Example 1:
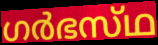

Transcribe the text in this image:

ഗർഭസ്‌ഥ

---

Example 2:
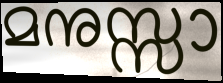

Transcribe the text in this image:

മനുസ്സാ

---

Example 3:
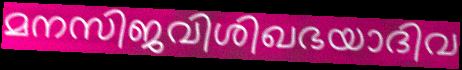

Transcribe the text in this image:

മനസിജവിശിഖഭയാദിവ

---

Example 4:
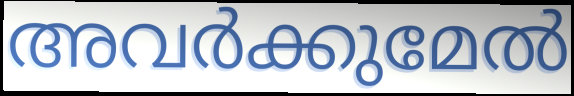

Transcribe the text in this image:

അവർക്കുമേൽ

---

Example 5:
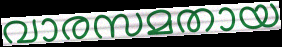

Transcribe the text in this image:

വാരസമതായ